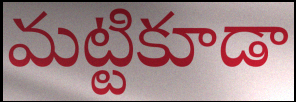
మట్టికూడా